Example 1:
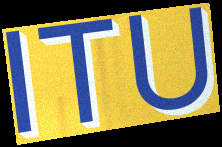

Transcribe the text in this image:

ITU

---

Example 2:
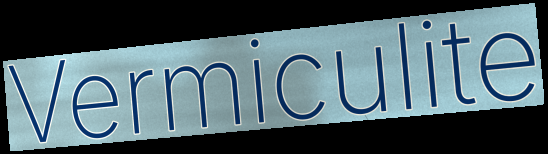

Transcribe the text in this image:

Vermiculite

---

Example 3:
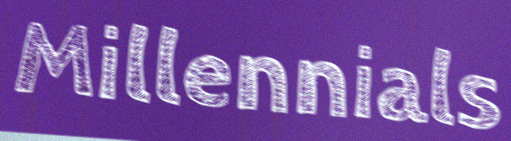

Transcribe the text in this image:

Millennials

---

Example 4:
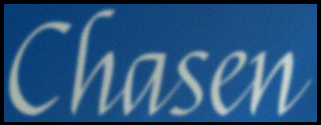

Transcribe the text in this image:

Chasen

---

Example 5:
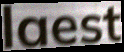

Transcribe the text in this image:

laest